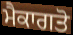
ਮੈਕਾਗਤੋ